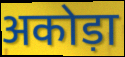
अकोड़ा